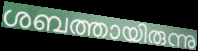
ശബത്തായിരുന്നു